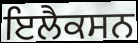
ਇਲੈਕਸਨ